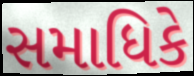
સમાધિકે